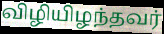
விழியிழந்தவர்